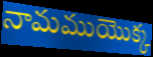
నామముయొక్క